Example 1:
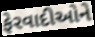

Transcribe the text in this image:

ફેરવાદીઓને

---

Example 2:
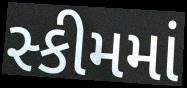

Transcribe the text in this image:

સ્કીમમાં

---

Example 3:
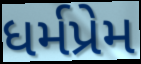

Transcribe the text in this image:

ધર્મપ્રેમ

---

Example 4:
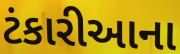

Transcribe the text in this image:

ટંકારીઆના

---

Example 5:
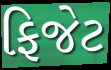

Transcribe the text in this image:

ફિજેટ